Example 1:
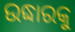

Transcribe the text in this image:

ଉଦ୍ଧାରକୁ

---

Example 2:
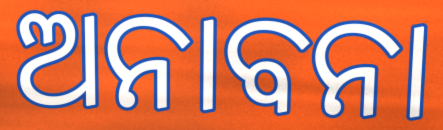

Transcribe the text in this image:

ଅନାବନା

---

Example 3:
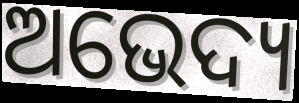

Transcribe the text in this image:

ଅଭେଦ୍ୟ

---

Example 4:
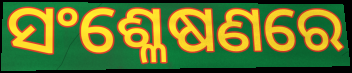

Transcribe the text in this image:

ସଂଶ୍ଳେଷଣରେ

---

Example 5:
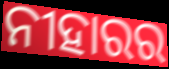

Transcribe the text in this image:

ନୀହାରର